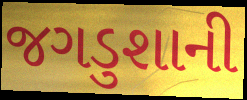
જગડુશાની